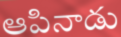
ఆపినాడు